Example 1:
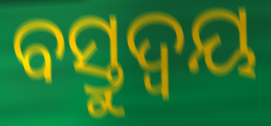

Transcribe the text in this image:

ବସ୍ତୁଦ୍ୱୟ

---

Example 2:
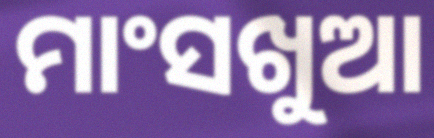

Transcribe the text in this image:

ମାଂସଖୁଆ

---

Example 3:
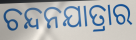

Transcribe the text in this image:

ଚନ୍ଦନଯାତ୍ରାର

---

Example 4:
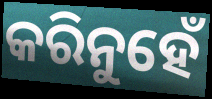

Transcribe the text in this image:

କରିନୁହେଁ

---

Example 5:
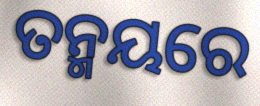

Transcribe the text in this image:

ତନ୍ମୟରେ